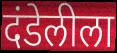
दंडेलीला